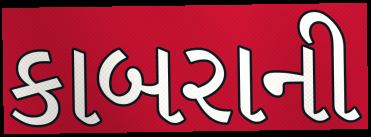
કાબરાની